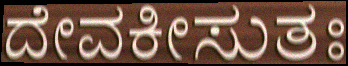
ದೇವಕೀಸುತಃ